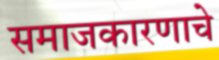
समाजकारणाचे